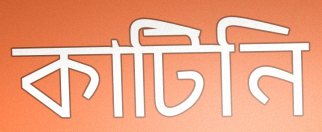
কাটিনি